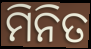
ମିନିତ